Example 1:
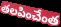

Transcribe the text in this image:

తలపించేంత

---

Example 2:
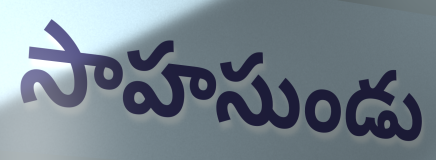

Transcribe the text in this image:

సాహసుండు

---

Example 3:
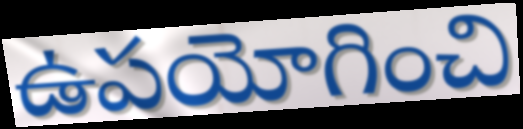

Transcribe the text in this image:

ఉపయోగించి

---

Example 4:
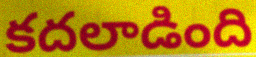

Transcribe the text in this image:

కదలాడింది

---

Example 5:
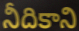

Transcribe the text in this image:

నీదికాని